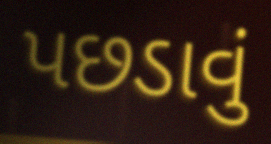
પછડાવું